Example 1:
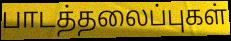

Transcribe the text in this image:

பாடத்தலைப்புகள்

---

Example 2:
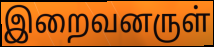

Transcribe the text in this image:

இறைவனருள்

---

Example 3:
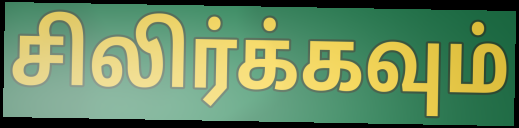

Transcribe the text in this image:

சிலிர்க்கவும்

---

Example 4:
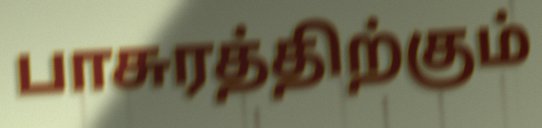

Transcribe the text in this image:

பாசுரத்திற்கும்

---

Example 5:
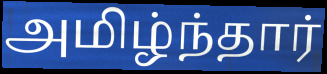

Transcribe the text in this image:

அமிழ்ந்தார்